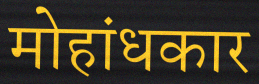
मोहांधकार